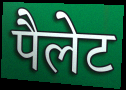
पैलेट